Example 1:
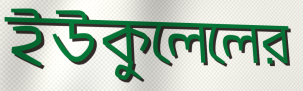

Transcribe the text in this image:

ইউকুলেলের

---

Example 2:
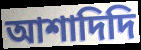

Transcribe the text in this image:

আশাদিদি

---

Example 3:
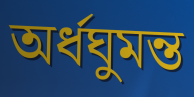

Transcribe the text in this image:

অর্ধঘুমন্ত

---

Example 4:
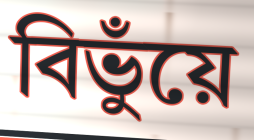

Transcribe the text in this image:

বিভুঁয়ে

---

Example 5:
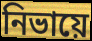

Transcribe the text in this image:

নিভায়ে